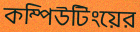
কম্পিউটিংয়ের